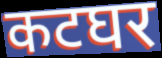
कटघर